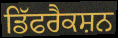
ਡਿੱਫਰੈਕਸ਼ਨ